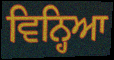
ਵਿਨ੍ਹਿਆ